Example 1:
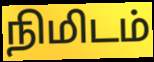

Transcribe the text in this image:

நிமிடம்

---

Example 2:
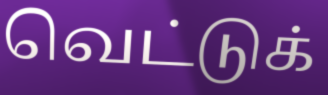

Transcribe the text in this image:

வெட்டுக்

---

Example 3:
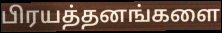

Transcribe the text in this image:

பிரயத்தனங்களை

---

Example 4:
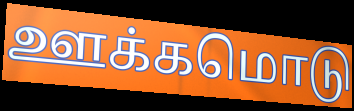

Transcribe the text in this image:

ஊக்கமொடு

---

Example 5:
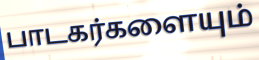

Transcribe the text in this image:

பாடகர்களையும்